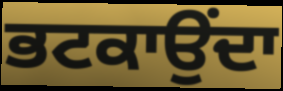
ਭਟਕਾਉਂਦਾ